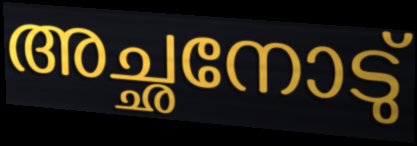
അച്ഛനോടു്